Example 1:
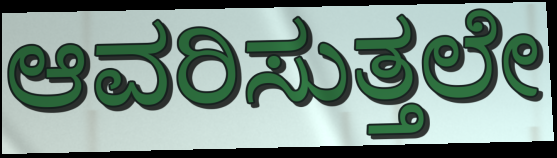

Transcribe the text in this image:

ಆವರಿಸುತ್ತಲೇ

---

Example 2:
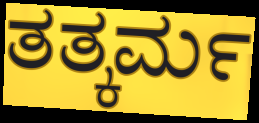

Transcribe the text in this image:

ತತ್ಕರ್ಮ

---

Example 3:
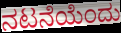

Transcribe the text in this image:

ನಟನೆಯೆಂದು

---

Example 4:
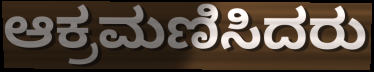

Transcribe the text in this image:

ಆಕ್ರಮಣಿಸಿದರು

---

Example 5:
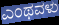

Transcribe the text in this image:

ಎಂಥವಳು